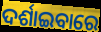
ଦର୍ଶାଇବାରେ